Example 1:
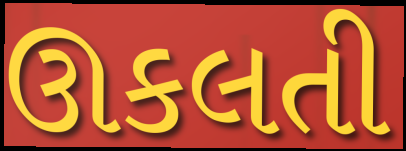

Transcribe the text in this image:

ઊકલતી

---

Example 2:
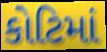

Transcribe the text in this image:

કોટિમાં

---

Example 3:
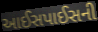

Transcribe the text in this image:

આઈસપાઈસની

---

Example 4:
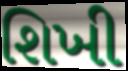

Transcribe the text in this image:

શિખી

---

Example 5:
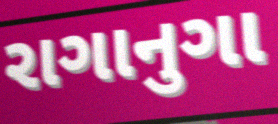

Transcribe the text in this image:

રાગાનુગા